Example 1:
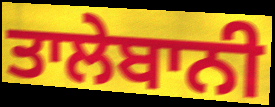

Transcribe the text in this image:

ਤਾਲੇਬਾਨੀ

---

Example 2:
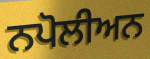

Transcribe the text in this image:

ਨਪੋਲੀਅਨ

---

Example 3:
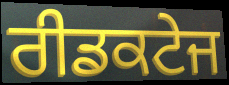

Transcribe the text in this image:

ਰੀਡਕਟੇਜ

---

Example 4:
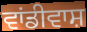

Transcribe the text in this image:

ਵਾਂਡੀਵਾਸ਼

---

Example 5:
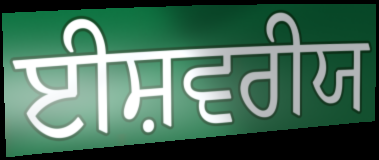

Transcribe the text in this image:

ਈਸ਼ਵਰੀਯ